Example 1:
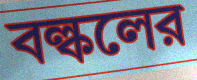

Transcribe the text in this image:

বল্কলের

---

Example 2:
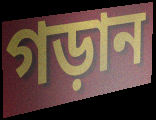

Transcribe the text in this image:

গড়ান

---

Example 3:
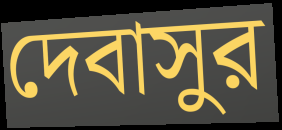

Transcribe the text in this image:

দেবাসুর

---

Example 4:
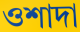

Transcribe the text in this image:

ওশাদা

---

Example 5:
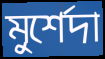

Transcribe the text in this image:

মুর্শেদা